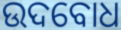
ଉଦବୋଧ